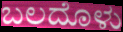
ಬಲದೊಳು